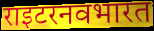
राइटरनवभारत